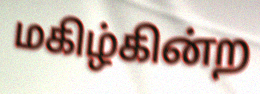
மகிழ்கின்ற